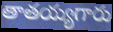
తాతయ్యగారు